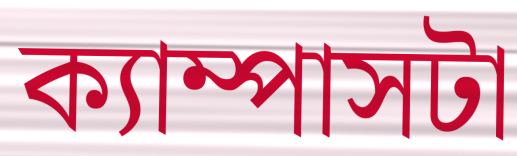
ক্যাম্পাসটা